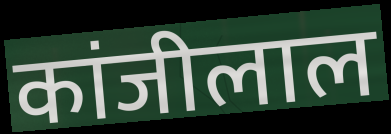
कांजीलाल